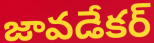
జావడేకర్